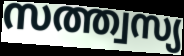
സത്ത്വസ്യ